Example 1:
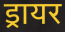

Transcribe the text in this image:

ड्रायर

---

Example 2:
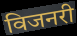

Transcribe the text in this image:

विजनरी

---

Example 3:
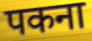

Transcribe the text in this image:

पकना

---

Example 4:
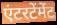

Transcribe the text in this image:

एंटरटेंमेंट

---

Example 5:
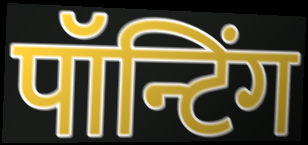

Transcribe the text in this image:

पॉन्टिंग